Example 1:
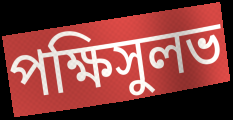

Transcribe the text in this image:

পক্ষিসুলভ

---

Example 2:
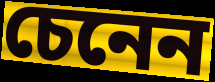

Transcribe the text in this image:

চেনেন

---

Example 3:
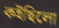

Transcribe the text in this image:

কইছিলো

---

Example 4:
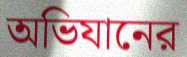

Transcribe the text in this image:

অভিযানের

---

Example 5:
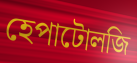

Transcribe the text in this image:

হেপাটোলজি